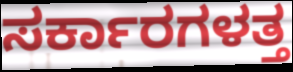
ಸರ್ಕಾರಗಳತ್ತ